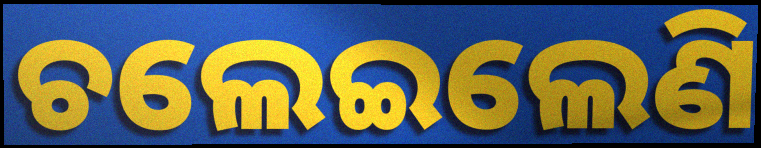
ଚଲେଇଲେଣି